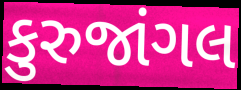
કુરુજાંગલ